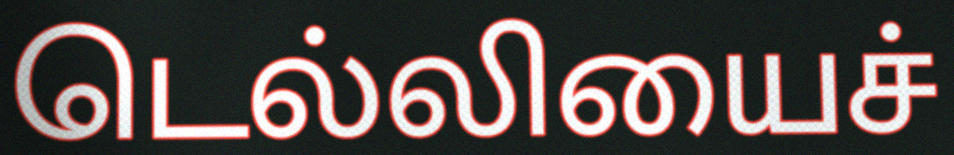
டெல்லியைச்